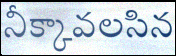
నీక్కావలసిన